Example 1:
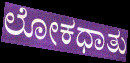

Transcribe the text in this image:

ಲೋಕಧಾತು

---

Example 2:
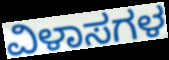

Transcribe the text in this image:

ವಿಳಾಸಗಳ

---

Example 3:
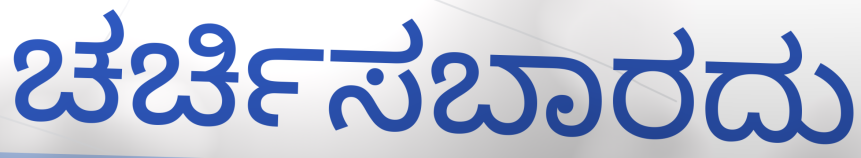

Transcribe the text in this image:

ಚರ್ಚಿಸಬಾರದು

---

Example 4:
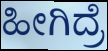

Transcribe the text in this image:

ಹೀಗಿದ್ರೆ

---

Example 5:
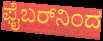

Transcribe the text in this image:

ಫೈಬರ್‌ನಿಂದ